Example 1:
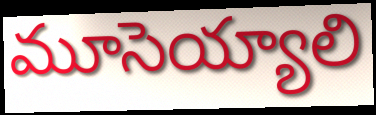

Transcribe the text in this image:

మూసెయ్యాలి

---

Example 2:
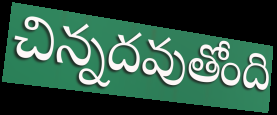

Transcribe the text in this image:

చిన్నదవుతోంది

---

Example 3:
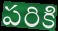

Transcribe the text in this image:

పరికి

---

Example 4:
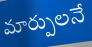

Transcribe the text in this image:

మార్పులనే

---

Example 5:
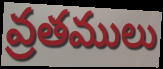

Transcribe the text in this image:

వ్రతములు